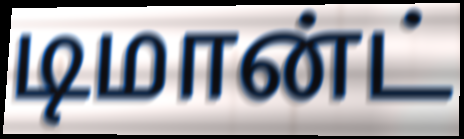
டிமான்ட்